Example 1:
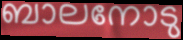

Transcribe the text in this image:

ബാലനോടു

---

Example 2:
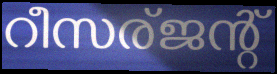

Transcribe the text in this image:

റീസര്ജന്റ്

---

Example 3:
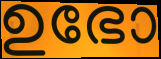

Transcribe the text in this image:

ഉഭോ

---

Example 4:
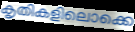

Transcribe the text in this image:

കൃതികളിലൊക്കെ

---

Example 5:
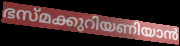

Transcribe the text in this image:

ഭസ്മക്കുറിയണിയാൻ